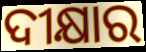
ଦୀକ୍ଷାର